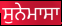
ਸੁਨੇਮਾਸਾ